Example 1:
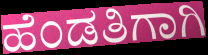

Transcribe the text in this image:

ಹೆಂಡತಿಗಾಗಿ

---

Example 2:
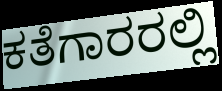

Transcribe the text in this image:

ಕತೆಗಾರರಲ್ಲಿ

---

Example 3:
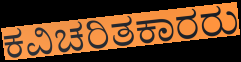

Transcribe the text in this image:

ಕವಿಚರಿತಕಾರರು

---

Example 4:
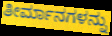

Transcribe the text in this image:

ತೀರ್ಮಾನಗಳನ್ನು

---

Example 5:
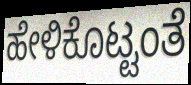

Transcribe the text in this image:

ಹೇಳಿಕೊಟ್ಟಂತೆ